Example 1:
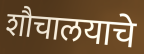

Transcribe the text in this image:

शौचालयाचे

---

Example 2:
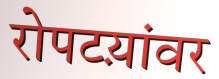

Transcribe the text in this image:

रोपटय़ांवर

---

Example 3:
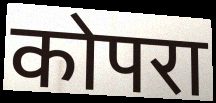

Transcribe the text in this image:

कोपरा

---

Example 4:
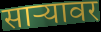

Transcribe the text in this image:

साऱ्यावर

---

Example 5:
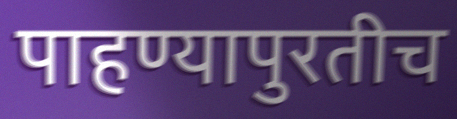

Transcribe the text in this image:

पाहण्यापुरतीच